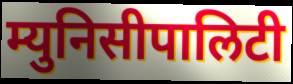
म्युनिसीपालिटी